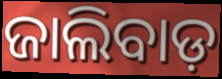
ଜାଲିବାଡ଼